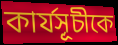
কার্যসূচীকে